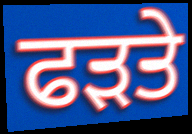
ਫੜਤੇ